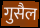
गुसैल